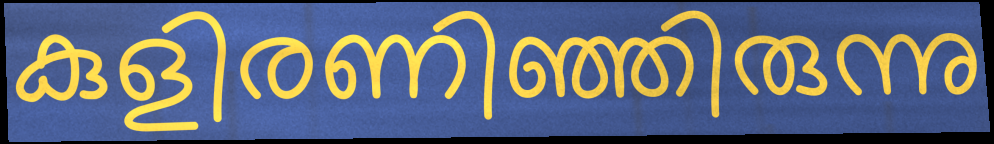
കുളിരണിഞ്ഞിരുന്നു